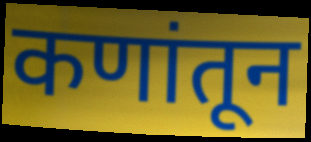
कणांतून